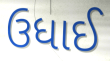
ઉધાઈ